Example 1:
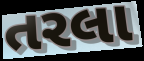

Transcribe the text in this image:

તરલા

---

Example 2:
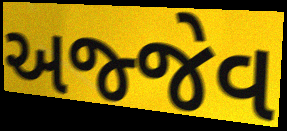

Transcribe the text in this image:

અજ્જેવ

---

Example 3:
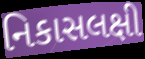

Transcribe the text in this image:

નિકાસલક્ષી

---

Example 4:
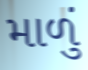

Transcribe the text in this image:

માળું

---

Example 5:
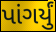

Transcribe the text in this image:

પાંગર્યું